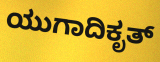
ಯುಗಾದಿಕೃತ್